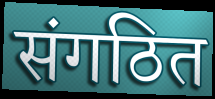
संगठित